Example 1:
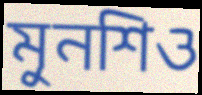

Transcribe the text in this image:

মুনশিও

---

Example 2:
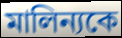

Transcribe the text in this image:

মালিন্যকে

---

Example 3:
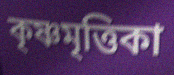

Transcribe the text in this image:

কৃষ্ণমৃত্তিকা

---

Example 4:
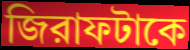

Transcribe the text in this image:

জিরাফটাকে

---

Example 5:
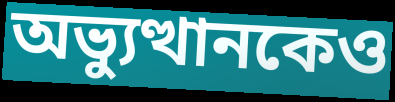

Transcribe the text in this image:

অভ্যুত্থানকেও